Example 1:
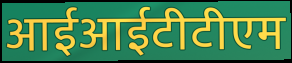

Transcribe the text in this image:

आईआईटीटीएम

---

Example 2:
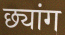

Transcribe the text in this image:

छ्यांग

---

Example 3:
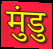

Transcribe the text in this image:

मुंडु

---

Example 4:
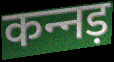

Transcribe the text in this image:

कन्‍नड़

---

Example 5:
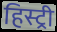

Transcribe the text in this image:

हिस्ट्री